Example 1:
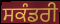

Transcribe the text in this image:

ਸਕੰਡਰੀ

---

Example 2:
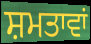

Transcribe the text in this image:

ਸ਼ਮਤਾਵਾਂ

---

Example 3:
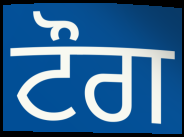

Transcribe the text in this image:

ਟੌਗ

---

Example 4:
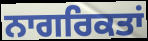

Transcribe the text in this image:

ਨਾਗਰਿਕਤਾਂ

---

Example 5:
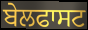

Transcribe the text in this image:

ਬੇਲਫਾਸਟ